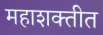
महाशक्तीत